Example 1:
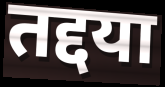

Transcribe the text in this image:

तद्दया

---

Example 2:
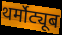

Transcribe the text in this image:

थर्मोट्यूब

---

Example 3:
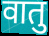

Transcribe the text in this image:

वातु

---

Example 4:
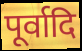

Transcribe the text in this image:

पूर्वादि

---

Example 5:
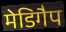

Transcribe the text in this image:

मेडिगैप